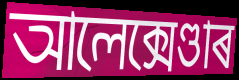
আলেক্সেণ্ডাৰ